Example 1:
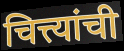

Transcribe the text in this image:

चित्त्यांची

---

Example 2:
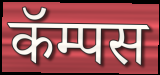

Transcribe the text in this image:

कॅम्पस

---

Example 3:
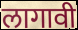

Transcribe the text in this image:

लागावी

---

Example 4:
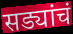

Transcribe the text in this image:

सड्यांचं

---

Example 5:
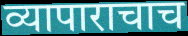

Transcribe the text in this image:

व्यापाराचाच